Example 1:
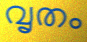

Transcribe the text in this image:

വൃതം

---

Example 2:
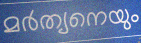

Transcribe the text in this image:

മർത്യനെയും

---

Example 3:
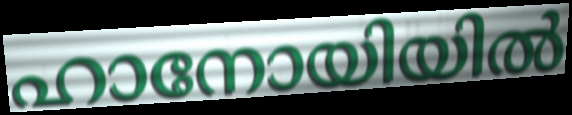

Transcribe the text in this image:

ഹാനോയിയിൽ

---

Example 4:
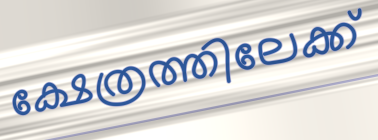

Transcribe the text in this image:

ക്ഷേത്രത്തിലേക്ക്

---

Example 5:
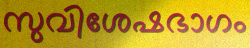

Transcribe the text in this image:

സുവിശേഷഭാഗം